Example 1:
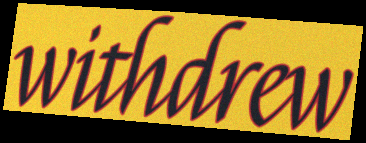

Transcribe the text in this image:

withdrew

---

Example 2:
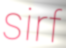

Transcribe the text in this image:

sirf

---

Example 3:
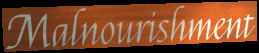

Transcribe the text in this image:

Malnourishment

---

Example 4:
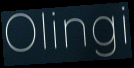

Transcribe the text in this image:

Olingi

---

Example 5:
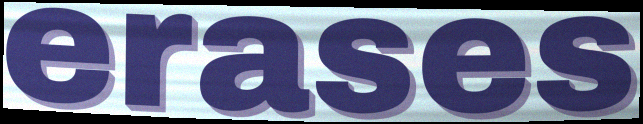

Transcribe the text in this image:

erases